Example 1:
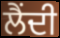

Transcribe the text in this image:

ਲੈਂਦੀ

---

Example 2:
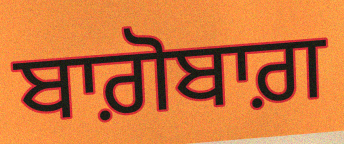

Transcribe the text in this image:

ਬਾਗ਼ੋਬਾਗ਼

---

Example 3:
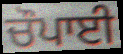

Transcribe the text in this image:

ਚੌਪਾਈ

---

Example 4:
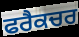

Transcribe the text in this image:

ਫਰੈਕਚਰ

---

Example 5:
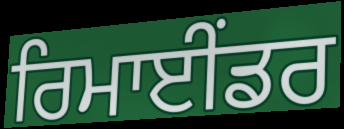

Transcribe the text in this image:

ਰਿਮਾਈਂਡਰ